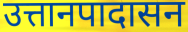
उत्तानपादासन